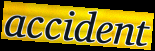
accident